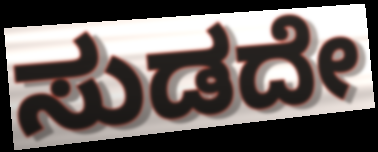
ಸುಡದೇ